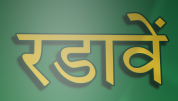
रडावें